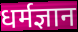
धर्मज्ञान